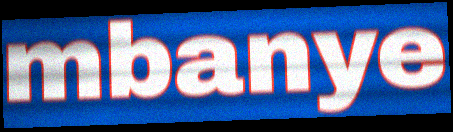
mbanye